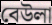
বেউলা